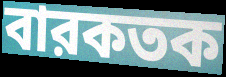
বারকতক